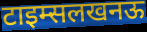
टाइम्सलखनऊ